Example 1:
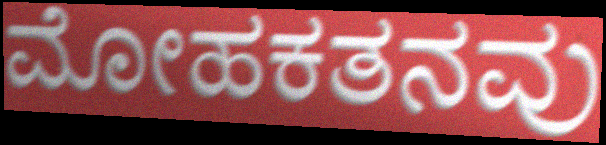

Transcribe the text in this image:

ಮೋಹಕತನವು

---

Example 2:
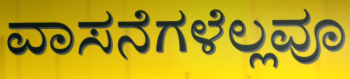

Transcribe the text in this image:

ವಾಸನೆಗಳೆಲ್ಲವೂ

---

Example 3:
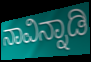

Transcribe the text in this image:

ನಾವಿನ್ನಾಡಿ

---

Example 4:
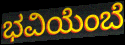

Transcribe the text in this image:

ಭವಿಯೆಂಬೆ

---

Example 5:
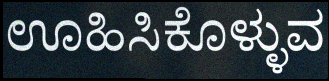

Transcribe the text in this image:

ಊಹಿಸಿಕೊಳ್ಳುವ